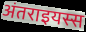
अंतराइयस्स